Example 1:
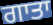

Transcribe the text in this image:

ਗਾਤਾ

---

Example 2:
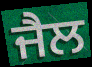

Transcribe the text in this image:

ਜੈਲ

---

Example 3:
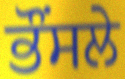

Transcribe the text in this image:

ਭੌਂਸਲੇ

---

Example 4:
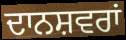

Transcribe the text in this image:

ਦਾਨਸ਼ਵਰਾਂ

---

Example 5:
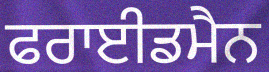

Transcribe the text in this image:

ਫਰਾਈਡਮੈਨ